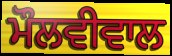
ਮੌਲਵੀਵਾਲ